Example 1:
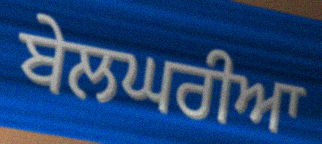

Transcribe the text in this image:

ਬੇਲਘਰੀਆ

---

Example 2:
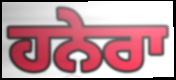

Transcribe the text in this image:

ਹਨੇਰਾ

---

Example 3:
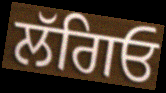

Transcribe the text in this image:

ਲੱਗਿਓ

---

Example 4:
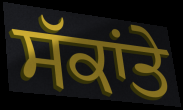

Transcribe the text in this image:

ਸੱਕਾਂਤੇ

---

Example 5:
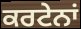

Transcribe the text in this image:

ਕਰਟੇਨਾਂ